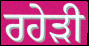
ਰਹੇੜੀ